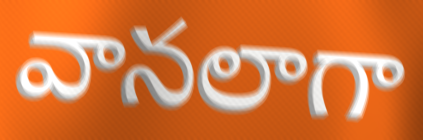
వానలాగా